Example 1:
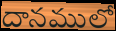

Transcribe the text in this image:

దానములో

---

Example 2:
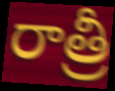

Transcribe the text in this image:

రాత్రీ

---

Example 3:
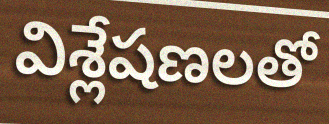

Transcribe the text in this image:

విశ్లేషణలతో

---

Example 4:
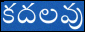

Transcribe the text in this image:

కదలవు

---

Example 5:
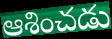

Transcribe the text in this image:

ఆశించడు